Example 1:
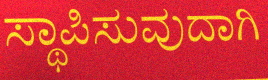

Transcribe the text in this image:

ಸ್ಥಾಪಿಸುವುದಾಗಿ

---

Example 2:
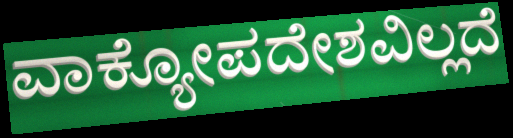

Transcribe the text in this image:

ವಾಕ್ಯೋಪದೇಶವಿಲ್ಲದೆ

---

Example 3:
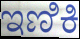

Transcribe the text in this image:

ಇಣಿಕಿ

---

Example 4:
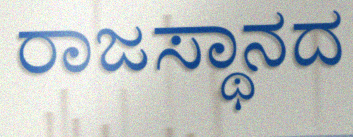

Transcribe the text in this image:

ರಾಜಸ್ಥಾನದ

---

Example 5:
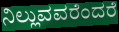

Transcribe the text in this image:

ನಿಲ್ಲುವವರೆಂದರೆ